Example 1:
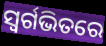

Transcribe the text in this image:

ସ୍ଵର୍ଗଭିତରେ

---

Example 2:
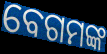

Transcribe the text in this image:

ବେଗମଙ୍କ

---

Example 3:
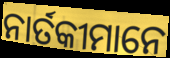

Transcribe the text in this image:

ନାର୍ତକୀମାନେ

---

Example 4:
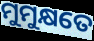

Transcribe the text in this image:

ମୁମୁକ୍ଷତେ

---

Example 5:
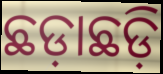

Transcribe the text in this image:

ଛଡ଼ାଛଡ଼ି